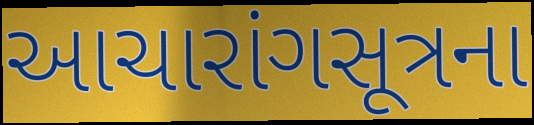
આચારાંગસૂત્રના